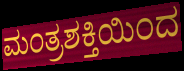
ಮಂತ್ರಶಕ್ತಿಯಿಂದ